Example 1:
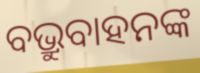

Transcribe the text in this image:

ବଭ୍ରୁବାହନଙ୍କ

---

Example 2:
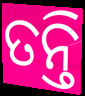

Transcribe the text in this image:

ତନ୍ତି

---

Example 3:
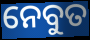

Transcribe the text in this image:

ନେବୁତ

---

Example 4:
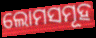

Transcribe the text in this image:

ଲୋମସମୂହ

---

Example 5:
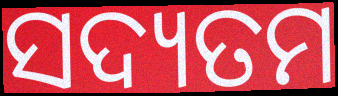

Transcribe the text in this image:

ସଦ୍ୟତମ